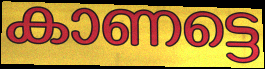
കാണട്ടെ